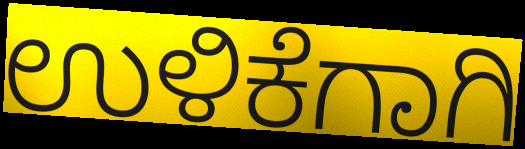
ಉಳಿಕೆಗಾಗಿ